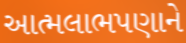
આત્મલાભપણાને